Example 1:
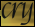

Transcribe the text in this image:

cry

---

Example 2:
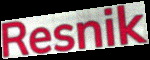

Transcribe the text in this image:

Resnik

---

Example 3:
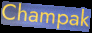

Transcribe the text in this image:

Champak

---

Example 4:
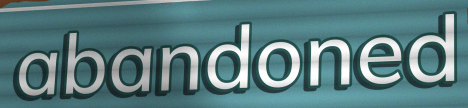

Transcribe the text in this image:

abandoned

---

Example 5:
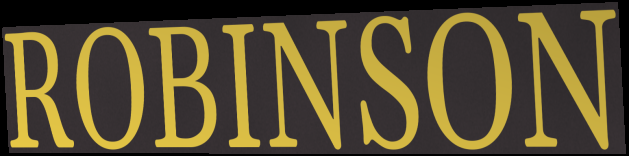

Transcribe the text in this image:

ROBINSON